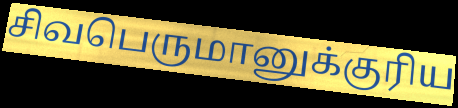
சிவபெருமானுக்குரிய